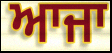
ਆਜਾ